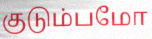
குடும்பமோ